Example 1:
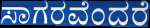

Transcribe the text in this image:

ಸಾಗರವೆಂದರೆ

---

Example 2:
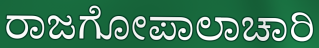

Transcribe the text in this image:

ರಾಜಗೋಪಾಲಾಚಾರಿ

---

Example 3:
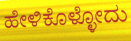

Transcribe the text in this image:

ಹೇಳಿಕೊಳ್ಳೋದು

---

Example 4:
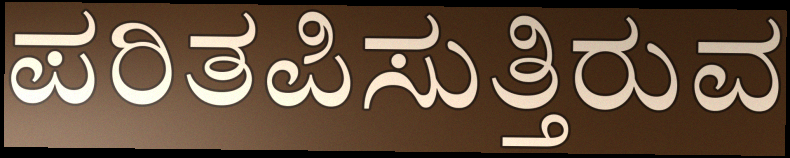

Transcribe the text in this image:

ಪರಿತಪಿಸುತ್ತಿರುವ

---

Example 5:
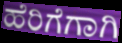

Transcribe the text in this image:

ಹೆರಿಗೆಗಾಗಿ